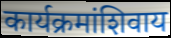
कार्यक्रमांशिवाय